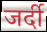
जर्दी